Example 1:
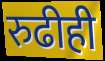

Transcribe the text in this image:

रुढीही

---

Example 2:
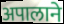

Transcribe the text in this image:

अपालाने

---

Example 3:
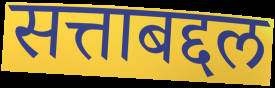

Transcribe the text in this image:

सत्ताबद्दल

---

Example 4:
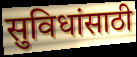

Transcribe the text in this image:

सुविधांसाठी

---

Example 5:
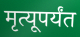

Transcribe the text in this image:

मृत्यूपर्यंत